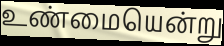
உண்மையென்று